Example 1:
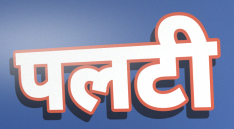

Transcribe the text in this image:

पलटी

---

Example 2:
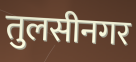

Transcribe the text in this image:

तुलसीनगर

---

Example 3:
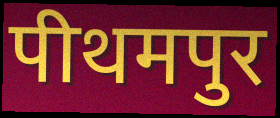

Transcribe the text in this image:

पीथमपुर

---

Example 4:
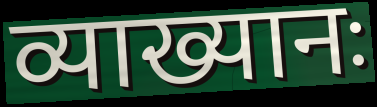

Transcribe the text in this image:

व्याख्यानः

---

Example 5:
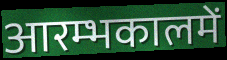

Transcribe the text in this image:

आरम्भकालमें